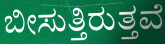
ಬೀಸುತ್ತಿರುತ್ತವೆ